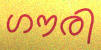
ഗൗരി